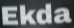
Ekda